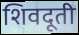
शिवदूती